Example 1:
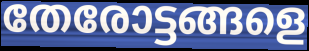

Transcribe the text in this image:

തേരോട്ടങ്ങളെ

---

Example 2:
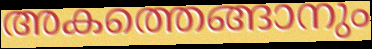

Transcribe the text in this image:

അകത്തെങ്ങാനും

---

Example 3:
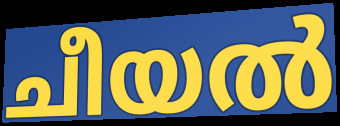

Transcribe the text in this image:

ചീയൽ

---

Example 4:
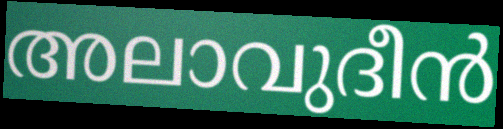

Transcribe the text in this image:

അലാവുദീൻ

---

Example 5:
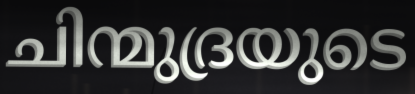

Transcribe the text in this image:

ചിന്മുദ്രയുടെ